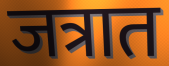
जत्रात